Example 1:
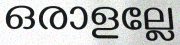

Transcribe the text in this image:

ഒരാളല്ലേ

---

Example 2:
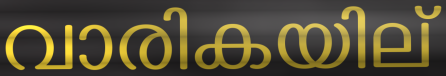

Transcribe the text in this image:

വാരികയില്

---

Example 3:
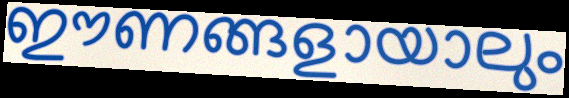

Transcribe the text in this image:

ഈണങ്ങളായാലും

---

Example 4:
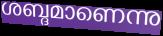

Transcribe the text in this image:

ശബ്ദമാണെന്നു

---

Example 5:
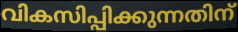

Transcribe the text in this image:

വികസിപ്പിക്കുന്നതിന്